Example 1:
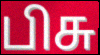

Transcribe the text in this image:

பிசு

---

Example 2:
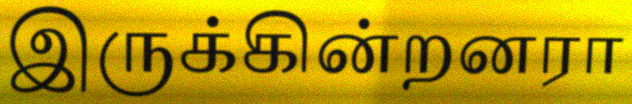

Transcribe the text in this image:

இருக்கின்றனரா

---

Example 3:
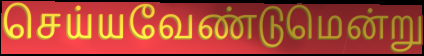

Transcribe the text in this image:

செய்யவேண்டுமென்று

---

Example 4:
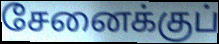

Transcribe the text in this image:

சேனைக்குப்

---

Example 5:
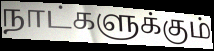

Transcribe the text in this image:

நாட்களுக்கும்